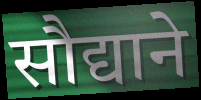
सौद्याने